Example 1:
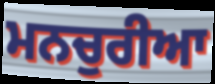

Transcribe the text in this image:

ਮਨਚੁਰੀਆ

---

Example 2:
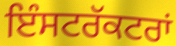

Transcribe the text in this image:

ਇੰਸਟਰੱਕਟਰਾਂ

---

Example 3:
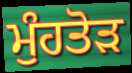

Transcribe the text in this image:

ਮੁੰਹਤੋੜ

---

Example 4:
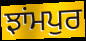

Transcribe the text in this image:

ਝਾਂਮਪੁਰ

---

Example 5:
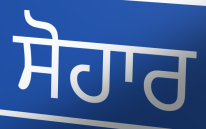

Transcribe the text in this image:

ਸੋਹਾਰ